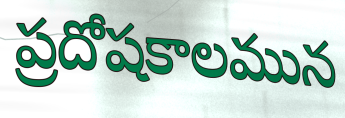
ప్రదోషకాలమున